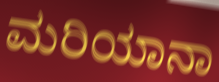
ಮರಿಯಾನಾ